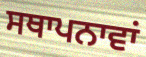
ਸਥਾਪਨਾਵਾਂ